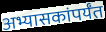
अभ्यासकांपर्यंत